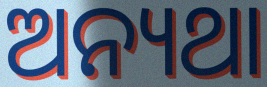
ଅନ୍ୟଥା